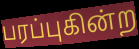
பரப்புகின்ற